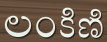
లంకిణి